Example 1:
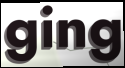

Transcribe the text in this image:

ging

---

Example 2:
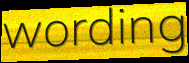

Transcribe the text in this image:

wording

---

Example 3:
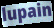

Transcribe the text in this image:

lupain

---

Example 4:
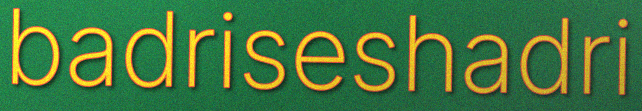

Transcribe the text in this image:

badriseshadri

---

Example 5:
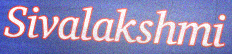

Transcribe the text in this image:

Sivalakshmi